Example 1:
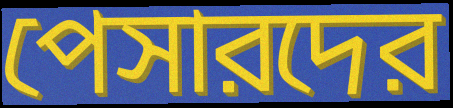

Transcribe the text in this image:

পেসারদের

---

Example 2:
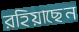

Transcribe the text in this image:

রহিয়াছেন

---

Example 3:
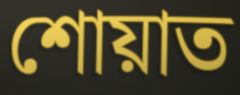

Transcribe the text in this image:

শোয়াত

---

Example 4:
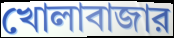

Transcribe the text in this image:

খোলাবাজার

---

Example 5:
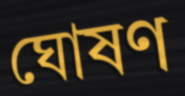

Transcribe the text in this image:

ঘোষণ